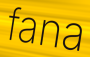
fana